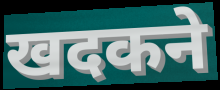
खदकने